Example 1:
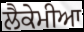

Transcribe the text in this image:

ਲੈਕੇਮੀਆ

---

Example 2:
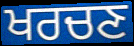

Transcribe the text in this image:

ਖਰਚਣ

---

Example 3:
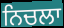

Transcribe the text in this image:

ਨਿਚਲਾ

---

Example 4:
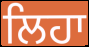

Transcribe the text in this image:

ਲਿਹਾ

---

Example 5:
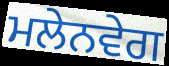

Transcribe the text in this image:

ਮਲੇਨਵੇਗ